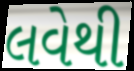
લવેથી